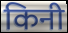
किनी